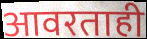
आवरताही